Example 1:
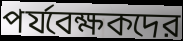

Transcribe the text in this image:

পর্যবেক্ষকদের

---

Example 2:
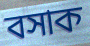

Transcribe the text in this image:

বসাক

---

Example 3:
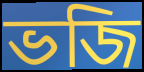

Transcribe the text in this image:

ভজি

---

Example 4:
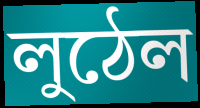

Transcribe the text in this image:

লুঠেল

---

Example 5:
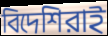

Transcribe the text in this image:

বিদেশিরাই